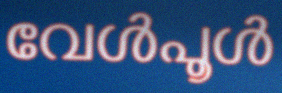
വേൾപൂൾ